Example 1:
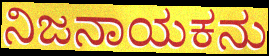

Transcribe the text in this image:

ನಿಜನಾಯಕನು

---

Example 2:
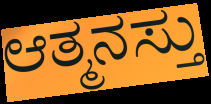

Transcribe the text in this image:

ಆತ್ಮನಸ್ತು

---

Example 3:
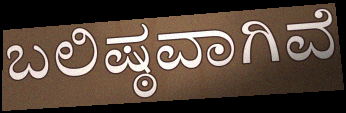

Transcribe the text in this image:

ಬಲಿಷ್ಠವಾಗಿವೆ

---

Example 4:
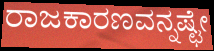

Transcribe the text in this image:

ರಾಜಕಾರಣವನ್ನಷ್ಟೇ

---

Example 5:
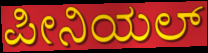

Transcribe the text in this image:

ಪೀನಿಯಲ್